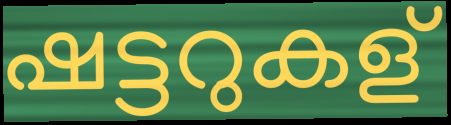
ഷട്ടറുകള്